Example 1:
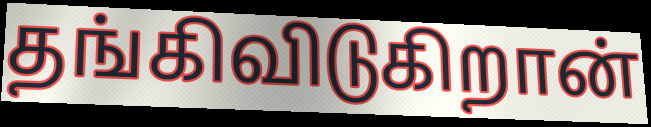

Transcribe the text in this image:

தங்கிவிடுகிறான்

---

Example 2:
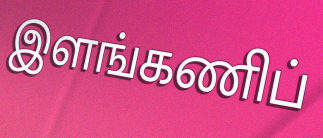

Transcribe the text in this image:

இளங்கணிப்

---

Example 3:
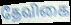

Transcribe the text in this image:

தேவிகை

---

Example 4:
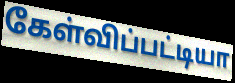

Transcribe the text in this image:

கேள்விப்பட்டியா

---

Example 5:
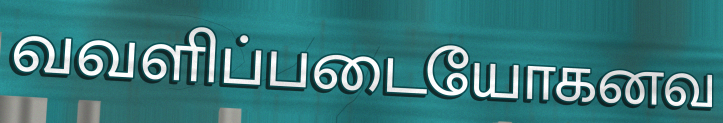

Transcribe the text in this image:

வவளிப்படையோகனவ